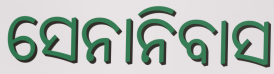
ସେନାନିବାସ